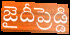
జైదీప్రెడ్డి